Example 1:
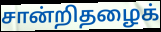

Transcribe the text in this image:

சான்றிதழைக்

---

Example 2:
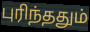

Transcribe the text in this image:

புரிந்ததும்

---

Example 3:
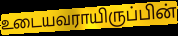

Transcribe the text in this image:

உடையவராயிருப்பின்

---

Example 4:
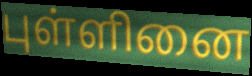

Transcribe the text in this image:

புள்ளினை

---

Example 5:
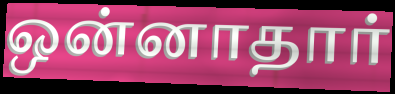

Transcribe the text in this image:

ஒன்னாதார்